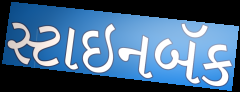
સ્ટાઇનબૅક